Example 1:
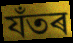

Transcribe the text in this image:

যঁতৰ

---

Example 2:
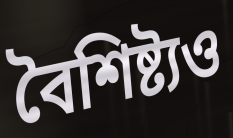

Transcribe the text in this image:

বৈশিষ্ট্যও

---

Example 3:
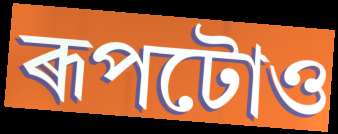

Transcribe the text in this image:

ৰূপটোও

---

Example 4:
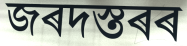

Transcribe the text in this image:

জৰদস্তৰৰ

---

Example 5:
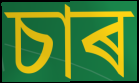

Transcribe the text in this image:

চাৰ